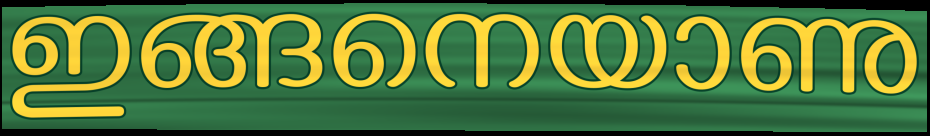
ഇങ്ങനെയാണു